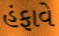
હંફાવે